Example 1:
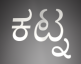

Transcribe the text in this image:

ಕಟ್ನ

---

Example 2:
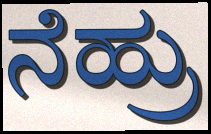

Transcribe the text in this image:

ನೆಹ್ರು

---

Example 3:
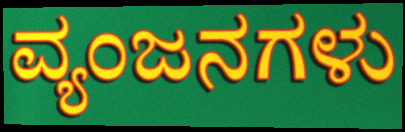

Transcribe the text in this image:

ವ್ಯಂಜನಗಳು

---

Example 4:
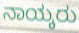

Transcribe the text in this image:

ನಾಯ್ಕರು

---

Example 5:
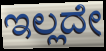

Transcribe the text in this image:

ಇಲ್ಲದೇ